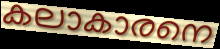
കലാകാരനെ